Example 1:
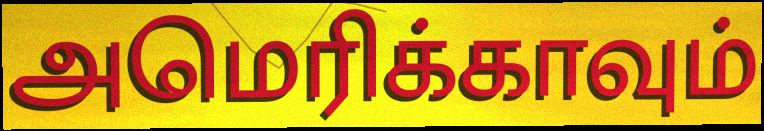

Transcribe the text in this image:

அமெரிக்காவும்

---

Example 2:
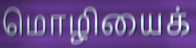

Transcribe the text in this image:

மொழியைக்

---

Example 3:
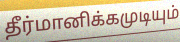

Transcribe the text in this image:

தீர்மானிக்கமுடியும்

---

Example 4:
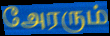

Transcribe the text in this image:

அேரரும்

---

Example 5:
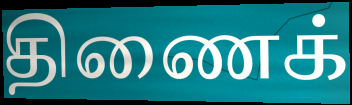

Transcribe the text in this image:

திணைக்